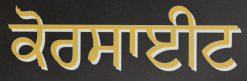
ਕੋਰਸਾਈਟ